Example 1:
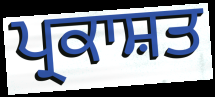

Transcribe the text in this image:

ਪ੍ਰਕਾਸ਼ਤ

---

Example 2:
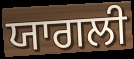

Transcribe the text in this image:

ਯਾਗਲੀ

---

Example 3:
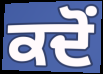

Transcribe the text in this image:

ਕਦੋਂ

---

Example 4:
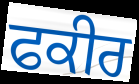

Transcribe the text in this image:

ਫਕੀਰ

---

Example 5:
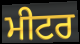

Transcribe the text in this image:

ਮੀਟਰ